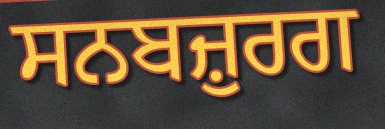
ਸਨਬਜ਼ੁਰਗ